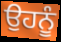
ਉਹਨੂੰ